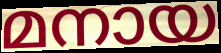
മനായ